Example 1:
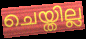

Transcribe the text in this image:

ചെയ്തില്ല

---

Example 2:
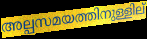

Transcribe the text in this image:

അല്പസമയത്തിനുള്ളില്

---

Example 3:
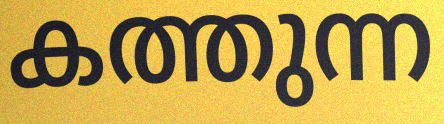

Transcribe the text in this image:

കത്തുന്ന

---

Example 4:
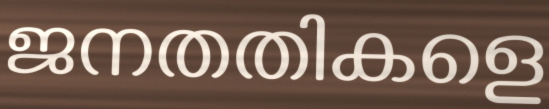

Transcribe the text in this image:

ജനതതികളെ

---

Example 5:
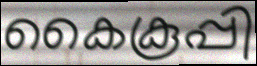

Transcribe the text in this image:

കൈകൂപ്പി